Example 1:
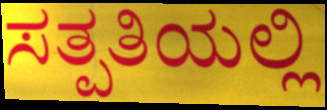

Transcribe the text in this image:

ಸತ್ಪತಿಯಲ್ಲಿ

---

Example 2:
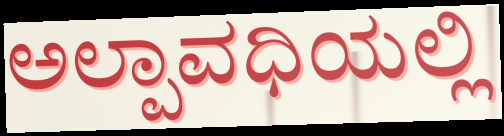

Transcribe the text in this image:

ಅಲ್ಪಾವಧಿಯಲ್ಲಿ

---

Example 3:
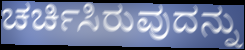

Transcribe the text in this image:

ಚರ್ಚಿಸಿರುವುದನ್ನು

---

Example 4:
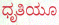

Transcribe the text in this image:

ಧೃತಿಯೂ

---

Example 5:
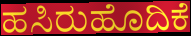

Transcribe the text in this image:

ಹಸಿರುಹೊದಿಕೆ